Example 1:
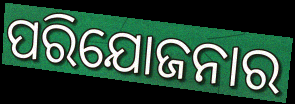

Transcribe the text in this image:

ପରିଯୋଜନାର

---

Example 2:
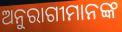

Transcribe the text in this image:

ଅନୁରାଗୀମାନଙ୍କ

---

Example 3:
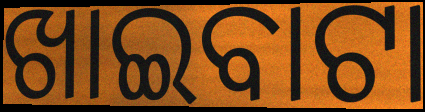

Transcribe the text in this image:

ଖାଇବାଟା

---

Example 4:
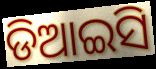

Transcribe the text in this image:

ଡିଆଇସି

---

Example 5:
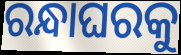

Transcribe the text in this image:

ରନ୍ଧାଘରକୁ